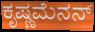
ಕೃಷ್ಣಮೆನನ್